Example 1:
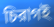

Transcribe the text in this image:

চিরাগই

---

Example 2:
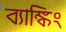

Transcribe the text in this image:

ব্যাঙ্কিং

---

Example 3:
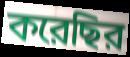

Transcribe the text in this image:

করেছির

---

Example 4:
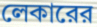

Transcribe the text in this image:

লেকারের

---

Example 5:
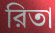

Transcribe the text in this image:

রিতা